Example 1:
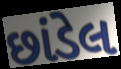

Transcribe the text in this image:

છાંડેલ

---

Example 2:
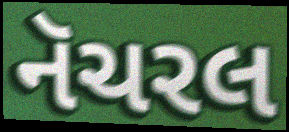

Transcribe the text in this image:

નૅચરલ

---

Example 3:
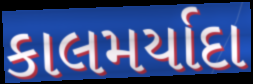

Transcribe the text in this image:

કાલમર્યાદા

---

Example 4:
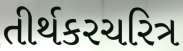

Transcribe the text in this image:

તીર્થકરચરિત્ર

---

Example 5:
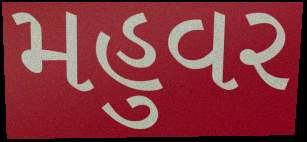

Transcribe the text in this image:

મહુવર